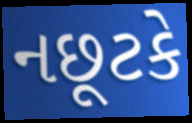
નછૂટકે